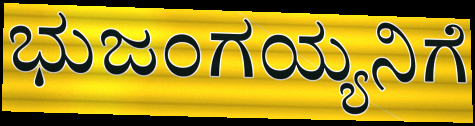
ಭುಜಂಗಯ್ಯನಿಗೆ